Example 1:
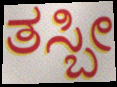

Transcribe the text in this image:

ತಸ್ಬೀ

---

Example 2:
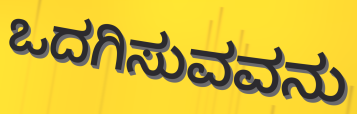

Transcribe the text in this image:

ಒದಗಿಸುವವನು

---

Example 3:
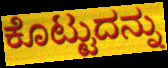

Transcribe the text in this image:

ಕೊಟ್ಟುದನ್ನು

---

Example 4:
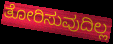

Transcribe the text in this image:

ತೋರಿಸುವುದಿಲ್ಲ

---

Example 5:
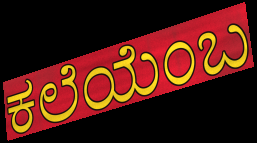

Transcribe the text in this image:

ಕಲೆಯೆಂಬ